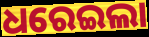
ଧରେଇଲା